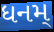
ધનમ્